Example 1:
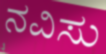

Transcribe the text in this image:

ನವಿಸು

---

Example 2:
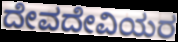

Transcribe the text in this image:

ದೇವದೇವಿಯರ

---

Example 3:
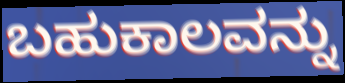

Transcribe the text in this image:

ಬಹುಕಾಲವನ್ನು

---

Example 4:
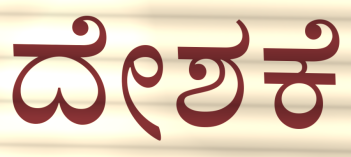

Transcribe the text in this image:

ದೇಶಕೆ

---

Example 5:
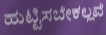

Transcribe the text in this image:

ಹುಟ್ಟಿಸಬೇಕಲ್ಲವೆ